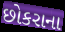
છોકરાના